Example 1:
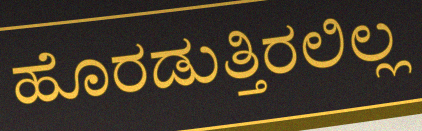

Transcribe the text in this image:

ಹೊರಡುತ್ತಿರಲಿಲ್ಲ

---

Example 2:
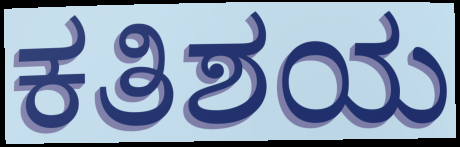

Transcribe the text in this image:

ಕತಿಶಯ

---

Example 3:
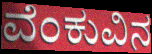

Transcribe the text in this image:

ವೆಂಕುವಿನ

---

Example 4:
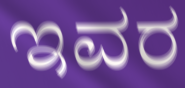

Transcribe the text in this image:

ಇವರ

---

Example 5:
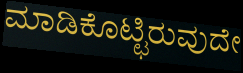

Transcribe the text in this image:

ಮಾಡಿಕೊಟ್ಟಿರುವುದೇ